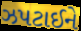
ઝપટાઈને